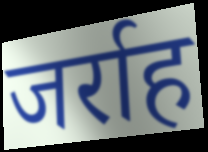
जर्राह